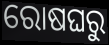
ରୋଷଘରୁ